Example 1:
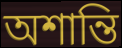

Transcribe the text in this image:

অশান্তি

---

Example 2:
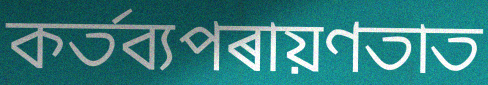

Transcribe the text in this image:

কৰ্তব্যপৰায়ণতাত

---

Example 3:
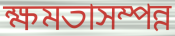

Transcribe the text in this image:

ক্ষমতাসম্পন্ন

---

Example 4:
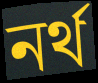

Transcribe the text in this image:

নৰ্থ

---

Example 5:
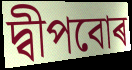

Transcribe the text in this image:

দ্বীপবোৰ